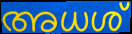
അധശ്